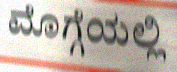
ಮೊಗ್ಗೆಯಲ್ಲಿ